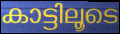
കാട്ടിലൂടെ